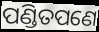
ପଣ୍ଡିତପଣେ